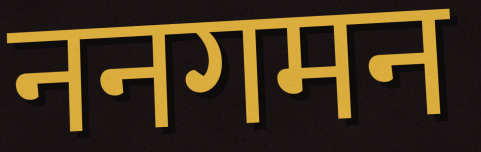
ननगमन